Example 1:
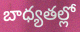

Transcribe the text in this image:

బాధ్యతల్లో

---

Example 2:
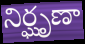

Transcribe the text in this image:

నిర్ఘృణా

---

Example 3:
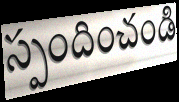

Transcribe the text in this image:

స్పందించండి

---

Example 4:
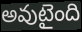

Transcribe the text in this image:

అవుటైంది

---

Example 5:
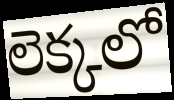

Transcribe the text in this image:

లెక్కలో